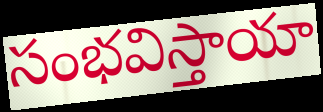
సంభవిస్తాయా